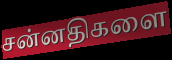
சன்னதிகளை